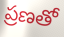
ప్రణతో